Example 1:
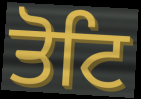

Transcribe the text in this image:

ਤੋਟਿ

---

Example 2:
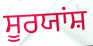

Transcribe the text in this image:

ਸੂਰਯਾਂਸ਼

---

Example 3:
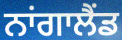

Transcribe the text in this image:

ਨਾਂਗਾਲੈਂਡ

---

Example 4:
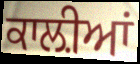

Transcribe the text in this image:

ਕਾਲ਼ੀਆਂ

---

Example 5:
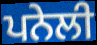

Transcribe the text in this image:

ਪਨੇਲੀ